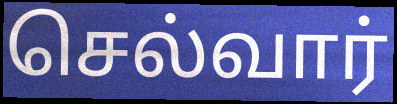
செல்வார்